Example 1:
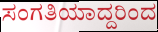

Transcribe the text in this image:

ಸಂಗತಿಯಾದ್ದರಿಂದ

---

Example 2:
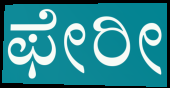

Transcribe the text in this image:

ಫೇರೀ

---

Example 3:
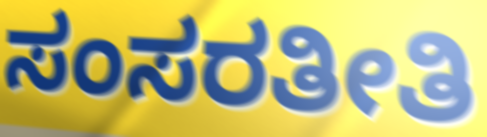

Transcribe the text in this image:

ಸಂಸರತೀತಿ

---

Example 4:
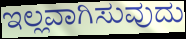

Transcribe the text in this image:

ಇಲ್ಲವಾಗಿಸುವುದು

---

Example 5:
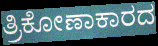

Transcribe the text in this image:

ತ್ರಿಕೋಣಾಕಾರದ